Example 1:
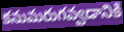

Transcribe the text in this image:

కనుమరుగవ్వడానికి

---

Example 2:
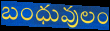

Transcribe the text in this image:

బంధువులం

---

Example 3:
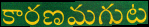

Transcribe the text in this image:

కారణమగుట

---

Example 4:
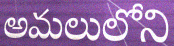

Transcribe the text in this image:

అమలులోని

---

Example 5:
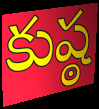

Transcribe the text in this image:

కుష్ఠ